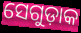
ସେଗୁଡ଼ାକ